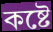
কষ্টে